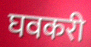
घवकरी